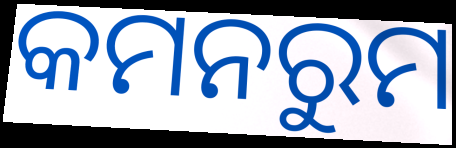
କମନରୁମ